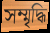
সম্মৃদ্ধি